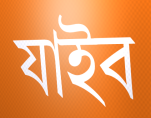
যাইব